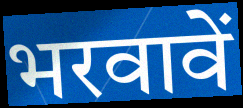
भरवावें